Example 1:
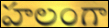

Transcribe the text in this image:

హలంగా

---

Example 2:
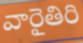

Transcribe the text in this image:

వారైతిరి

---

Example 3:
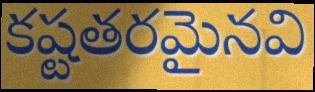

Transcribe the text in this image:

కష్టతరమైనవి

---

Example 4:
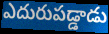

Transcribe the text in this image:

ఎదురుపడ్డాడు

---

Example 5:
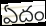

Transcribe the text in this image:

ఏదం